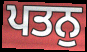
ਪਤਨੁ